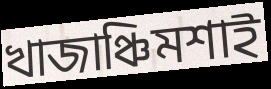
খাজাঞ্চিমশাই